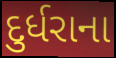
દુર્ધરાના